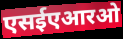
एसईएआरओ